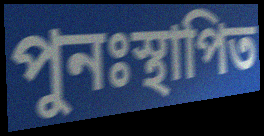
পুনঃস্থাপিত